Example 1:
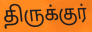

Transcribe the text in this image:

திருக்குர்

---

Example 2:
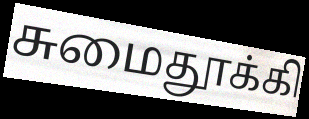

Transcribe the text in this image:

சுமைதூக்கி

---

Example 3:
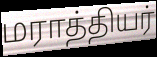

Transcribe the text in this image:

மராத்தியர்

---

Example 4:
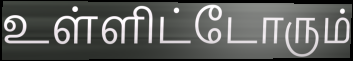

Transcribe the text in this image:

உள்ளிட்டோரும்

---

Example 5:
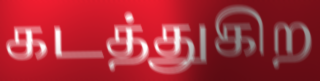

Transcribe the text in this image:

கடத்துகிற